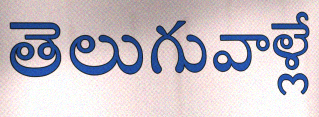
తెలుగువాళ్లే